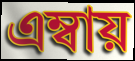
এম্বায়